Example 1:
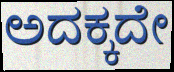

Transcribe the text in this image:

ಅದಕ್ಕದೇ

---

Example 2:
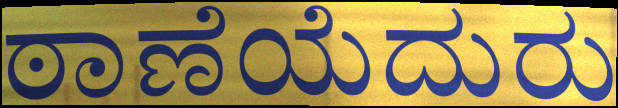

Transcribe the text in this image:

ಠಾಣೆಯೆದುರು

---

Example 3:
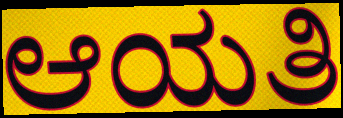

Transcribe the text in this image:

ಆಯತಿ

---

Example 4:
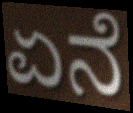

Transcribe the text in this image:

ಏನೆ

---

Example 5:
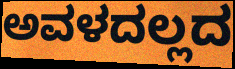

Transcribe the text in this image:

ಅವಳದಲ್ಲದ